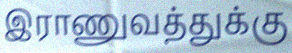
இராணுவத்துக்கு